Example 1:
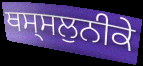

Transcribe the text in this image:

ਥਸ੍ਸਲੁਨੀਕੇ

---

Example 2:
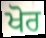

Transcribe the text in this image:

ਖੋਰ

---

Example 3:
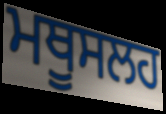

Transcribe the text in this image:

ਮਥੂਸਲਹ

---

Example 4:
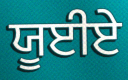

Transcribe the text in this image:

ਯੂਈਏ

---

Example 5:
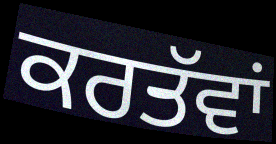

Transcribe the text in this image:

ਕਰਤੱਵਾਂ